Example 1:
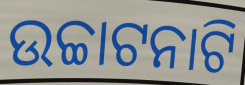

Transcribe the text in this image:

ଉଚ୍ଚାଟନାଟି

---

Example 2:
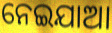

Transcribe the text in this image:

ନେଇଯାଆ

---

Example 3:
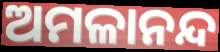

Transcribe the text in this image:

ଅମଳାନନ୍ଦ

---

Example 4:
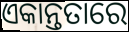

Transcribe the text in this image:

ଏକାନ୍ତତାରେ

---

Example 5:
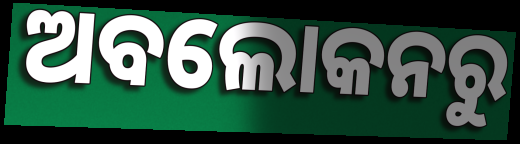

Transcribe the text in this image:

ଅବଲୋକନରୁ